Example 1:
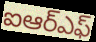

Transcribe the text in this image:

ఐఆర్ఎఫ్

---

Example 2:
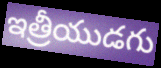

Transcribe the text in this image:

ఇత్రీయుడగు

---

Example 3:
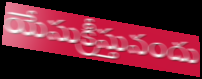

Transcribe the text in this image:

యేసుక్రీస్తునందు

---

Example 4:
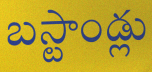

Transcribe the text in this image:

బస్టాండ్లు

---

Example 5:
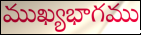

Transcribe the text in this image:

ముఖ్యభాగము